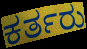
ಕರ್ತರು